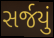
સર્જયું